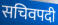
सचिवपदी